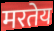
मरतेय